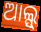
ଆଲ୍ସ୍